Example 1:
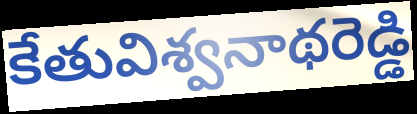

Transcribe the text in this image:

కేతువిశ్వనాథరెడ్డి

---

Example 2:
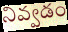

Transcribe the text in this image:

నివ్వడం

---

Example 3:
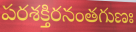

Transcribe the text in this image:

పరశక్తిరనంతగుణః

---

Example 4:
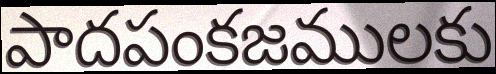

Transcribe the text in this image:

పాదపంకజములకు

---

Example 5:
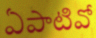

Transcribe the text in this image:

ఏపాటివో